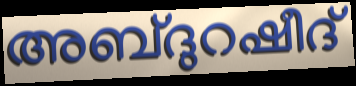
അബ്ദുറഷീദ്